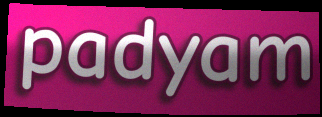
padyam